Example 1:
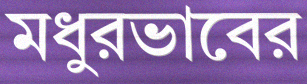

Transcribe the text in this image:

মধুরভাবের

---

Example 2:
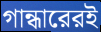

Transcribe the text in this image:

গান্ধারেরই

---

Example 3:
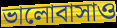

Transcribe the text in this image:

ভালোবাসাও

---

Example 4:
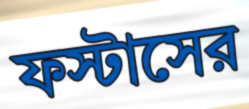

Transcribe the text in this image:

ফস্টাসের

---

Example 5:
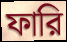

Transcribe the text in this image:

ফারি